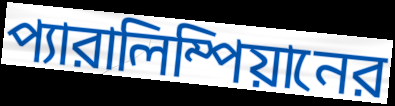
প্যারালিম্পিয়ানের